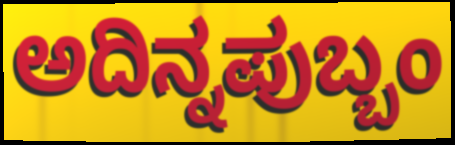
ಅದಿನ್ನಪುಬ್ಬಂ